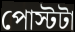
পোস্টটা